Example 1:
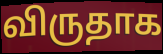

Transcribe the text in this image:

விருதாக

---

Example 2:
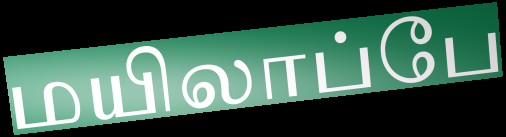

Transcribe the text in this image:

மயிலாப்பே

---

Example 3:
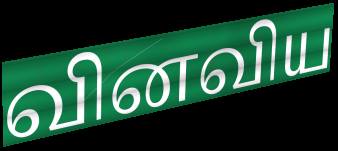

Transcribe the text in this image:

வினவிய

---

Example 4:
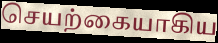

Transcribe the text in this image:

செயற்கையாகிய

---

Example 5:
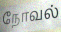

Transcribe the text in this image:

நோவல்